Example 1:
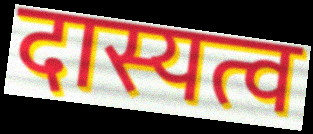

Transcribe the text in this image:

दास्यत्व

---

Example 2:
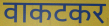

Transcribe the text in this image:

वाकटकर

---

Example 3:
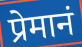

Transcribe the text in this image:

प्रेमानं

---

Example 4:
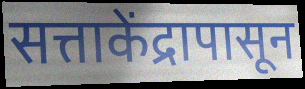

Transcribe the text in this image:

सत्ताकेंद्रापासून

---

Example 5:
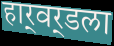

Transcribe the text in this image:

हार्वर्डला